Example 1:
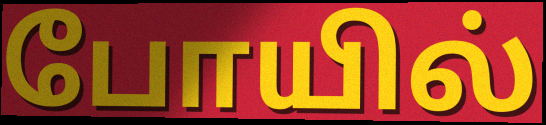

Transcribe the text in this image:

போயில்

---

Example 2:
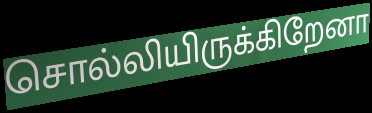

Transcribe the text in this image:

சொல்லியிருக்கிறேனா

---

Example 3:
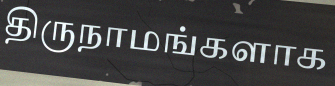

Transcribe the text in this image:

திருநாமங்களாக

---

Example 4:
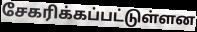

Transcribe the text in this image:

சேகரிக்கப்பட்டுள்ளன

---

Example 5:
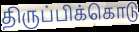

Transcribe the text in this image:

திருப்பிக்கொடு